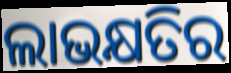
ଲାଭକ୍ଷତିର